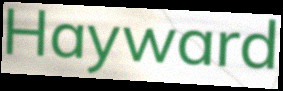
Hayward